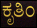
ಕೃತಿಂ